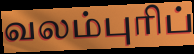
வலம்புரிப்